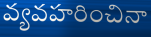
వ్యవహరించినా